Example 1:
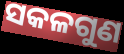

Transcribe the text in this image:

ସକଳଗୁଣ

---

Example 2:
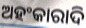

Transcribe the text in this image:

ଅହଂକାରାଦି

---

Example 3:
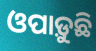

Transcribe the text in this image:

ଓପାଡ଼ୁଛି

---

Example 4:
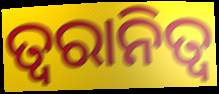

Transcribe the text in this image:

ତ୍ୱରାନିତ୍ଵ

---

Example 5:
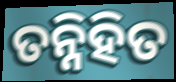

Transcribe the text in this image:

ତନ୍ନିହିତ